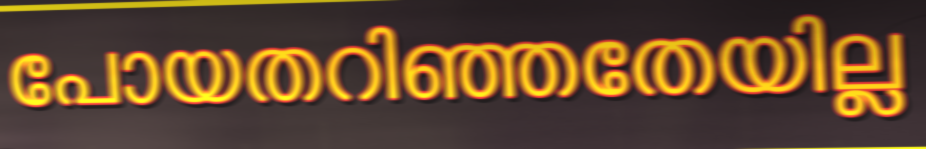
പോയതറിഞ്ഞതേയില്ല